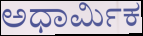
ಅಧಾರ್ಮಿಕ